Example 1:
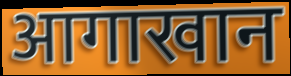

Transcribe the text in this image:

आगाखान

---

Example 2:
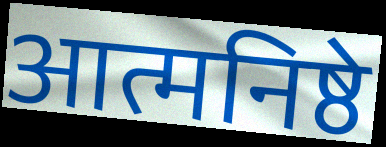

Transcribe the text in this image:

आत्मनिष्ठे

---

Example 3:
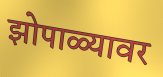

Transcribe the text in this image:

झोपाळ्यावर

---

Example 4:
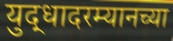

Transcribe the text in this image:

युद्धादरम्यानच्या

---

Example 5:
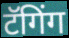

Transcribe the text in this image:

टॅगिंग